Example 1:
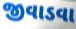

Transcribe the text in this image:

જીવાડવા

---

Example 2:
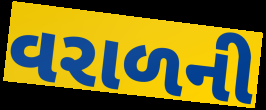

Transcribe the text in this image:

વરાળની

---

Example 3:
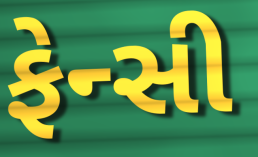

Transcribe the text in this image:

ફેન્સી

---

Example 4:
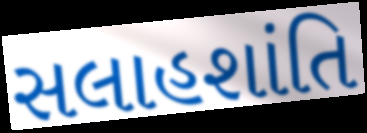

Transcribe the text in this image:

સલાહશાંતિ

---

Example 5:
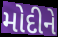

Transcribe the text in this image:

મોદીને